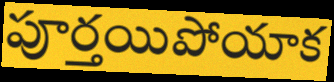
పూర్తయిపోయాక